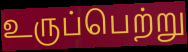
உருப்பெற்று